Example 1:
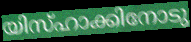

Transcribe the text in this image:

യിസ്ഹാക്കിനോടു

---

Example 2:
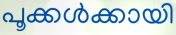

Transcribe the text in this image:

പൂക്കൾക്കായി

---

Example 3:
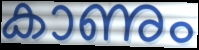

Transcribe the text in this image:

കാണും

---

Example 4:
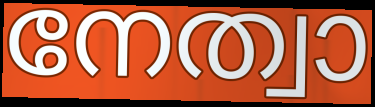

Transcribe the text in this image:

നേത്വാ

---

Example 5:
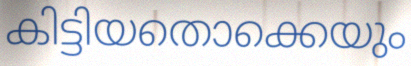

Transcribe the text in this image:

കിട്ടിയതൊക്കെയും